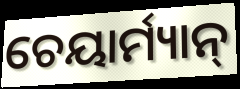
ଚେୟାର୍ମ୍ୟାନ୍